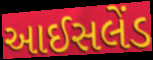
આઈસલેંડ